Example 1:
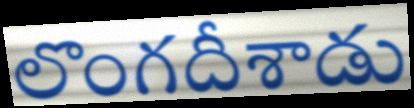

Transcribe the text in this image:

లొంగదీశాడు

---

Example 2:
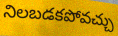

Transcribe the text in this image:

నిలబడకపోవచ్చు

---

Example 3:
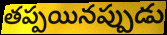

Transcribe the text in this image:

తప్పయినప్పుడు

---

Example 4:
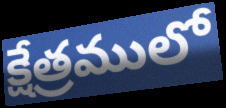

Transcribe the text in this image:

క్షేత్రములో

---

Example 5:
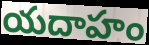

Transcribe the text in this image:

యదాహం